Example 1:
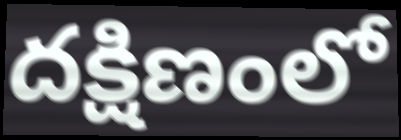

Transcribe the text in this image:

దక్షిణంలో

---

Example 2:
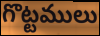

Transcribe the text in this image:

గొట్టములు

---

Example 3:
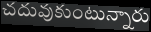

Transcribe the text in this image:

చదువుకుంటున్నారు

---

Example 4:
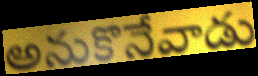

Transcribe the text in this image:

అనుకొనేవాడు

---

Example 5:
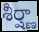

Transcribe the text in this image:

శీర్ష్ణా